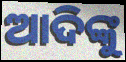
ଆଦିଙ୍କୁ